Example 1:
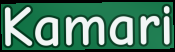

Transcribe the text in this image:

Kamari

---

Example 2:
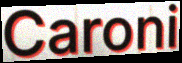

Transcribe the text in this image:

Caroni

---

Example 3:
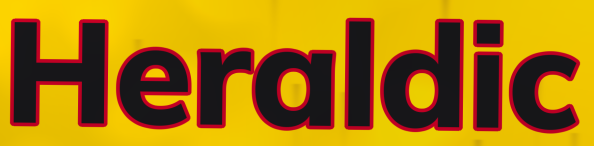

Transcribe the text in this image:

Heraldic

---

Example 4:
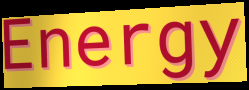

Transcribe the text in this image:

Energy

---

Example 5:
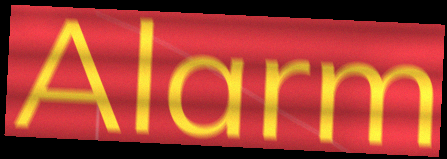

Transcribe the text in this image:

Alarm